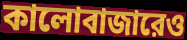
কালোবাজারেও